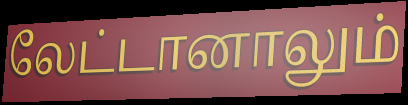
லேட்டானாலும்